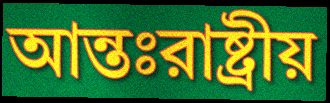
আন্তঃরাষ্ট্রীয়